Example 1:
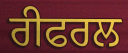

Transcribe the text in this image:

ਰੀਫਰਲ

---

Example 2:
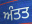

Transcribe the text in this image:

ਅੰਤਤ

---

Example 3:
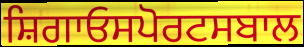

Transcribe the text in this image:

ਸ਼ਿਗਾਓਸਪੋਰਟਸਬਾਲ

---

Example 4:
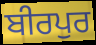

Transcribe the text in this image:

ਬੀਰਪੁਰ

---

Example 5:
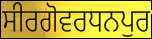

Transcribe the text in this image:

ਸੀਰਗੋਵਰਧਨਪੁਰ